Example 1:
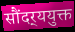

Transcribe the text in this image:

सौंदर्ययुक्त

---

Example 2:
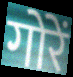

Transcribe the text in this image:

गोरें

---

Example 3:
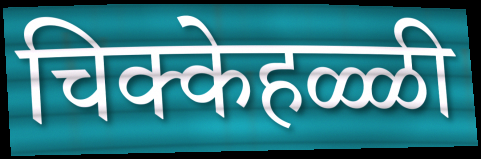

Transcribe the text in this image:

चिक्केहळ्ळी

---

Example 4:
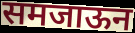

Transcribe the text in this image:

समजाऊन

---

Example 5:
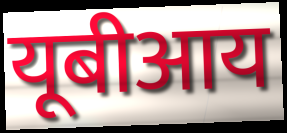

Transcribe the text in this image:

यूबीआय